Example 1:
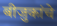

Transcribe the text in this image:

बीजुकांचे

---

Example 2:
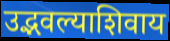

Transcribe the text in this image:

उद्भवल्याशिवाय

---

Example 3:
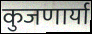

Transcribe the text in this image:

कुजणार्या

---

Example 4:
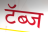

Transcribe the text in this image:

टॅब्ज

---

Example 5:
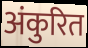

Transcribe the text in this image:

अंकुरित